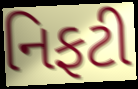
નિફટી